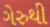
ગેરુથી